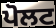
ਪੋਲਟ